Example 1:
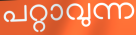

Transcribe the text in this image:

പറ്റാവുന്ന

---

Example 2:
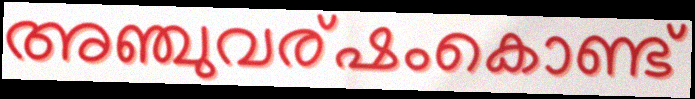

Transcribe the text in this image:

അഞ്ചുവര്ഷംകൊണ്ട്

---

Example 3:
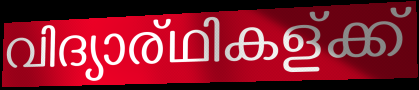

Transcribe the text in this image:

വിദ്യാര്ഥികള്ക്ക്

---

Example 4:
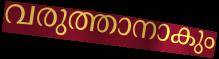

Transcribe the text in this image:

വരുത്താനാകും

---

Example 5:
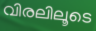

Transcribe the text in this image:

വിരലിലൂടെ